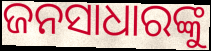
ଜନସାଧାରଙ୍କୁ